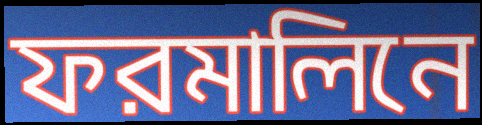
ফরমালিনে